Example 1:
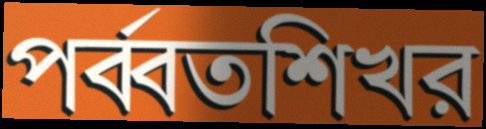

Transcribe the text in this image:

পর্ব্বতশিখর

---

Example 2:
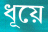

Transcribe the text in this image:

ধূয়ে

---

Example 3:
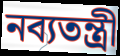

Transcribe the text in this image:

নব্যতন্ত্রী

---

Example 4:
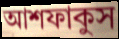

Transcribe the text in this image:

আশফাকুস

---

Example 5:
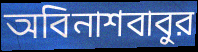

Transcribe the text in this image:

অবিনাশবাবুর